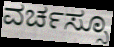
ವರ್ಚಸ್ಸೂ